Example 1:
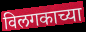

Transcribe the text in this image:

विलगकाच्या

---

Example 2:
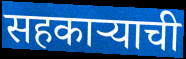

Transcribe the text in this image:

सहकाऱ्याची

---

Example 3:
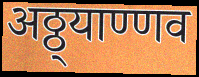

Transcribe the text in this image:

अठ्ठ्याण्णव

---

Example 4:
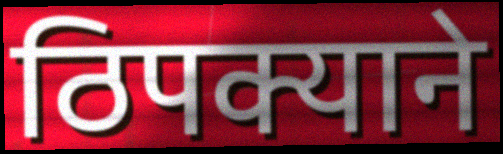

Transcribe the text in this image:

ठिपक्याने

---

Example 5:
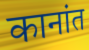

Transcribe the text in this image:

कानांत